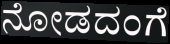
ನೋಡದಂಗೆ